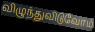
விழுந்துவிடுவோம்